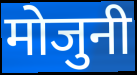
मोजुनी